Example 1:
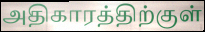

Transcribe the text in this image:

அதிகாரத்திற்குள்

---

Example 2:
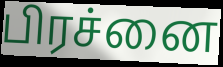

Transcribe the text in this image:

பிரச்னை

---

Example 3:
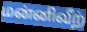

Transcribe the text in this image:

மன்னிவீற்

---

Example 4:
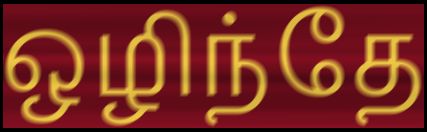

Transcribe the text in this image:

ஒழிந்தே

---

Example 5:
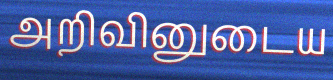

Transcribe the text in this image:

அறிவினுடைய